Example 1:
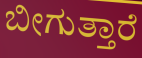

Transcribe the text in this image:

ಬೀಗುತ್ತಾರೆ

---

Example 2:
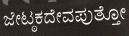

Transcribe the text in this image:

ಜೇಟ್ಠಕದೇವಪುತ್ತೋ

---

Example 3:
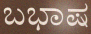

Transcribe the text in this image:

ಬಭಾಷ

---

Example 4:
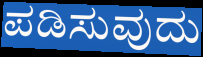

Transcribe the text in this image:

ಪಡಿಸುವುದು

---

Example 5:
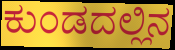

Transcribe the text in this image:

ಕುಂಡದಲ್ಲಿನ